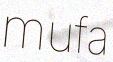
mufa